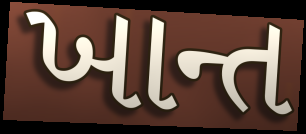
ખાન્ત